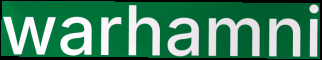
warhamni